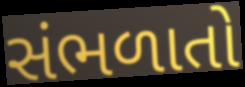
સંભળાતો